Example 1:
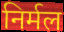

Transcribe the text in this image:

निर्मल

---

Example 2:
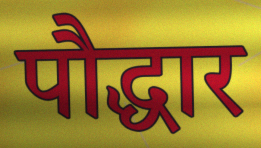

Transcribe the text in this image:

पौद्धार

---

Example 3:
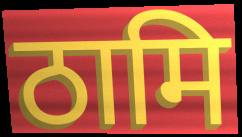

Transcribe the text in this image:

ठामि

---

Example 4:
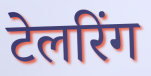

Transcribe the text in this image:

टेलरिंग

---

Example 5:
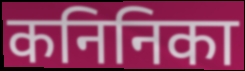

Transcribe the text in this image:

कनिनिका